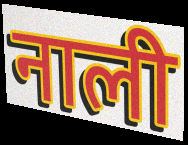
नाली